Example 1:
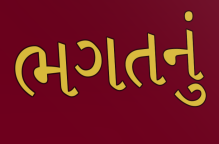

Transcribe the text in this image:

ભગતનું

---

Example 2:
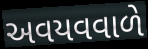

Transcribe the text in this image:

અવયવવાળે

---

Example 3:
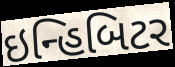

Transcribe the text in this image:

ઇન્હિબિટર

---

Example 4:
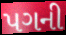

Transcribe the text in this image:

પગની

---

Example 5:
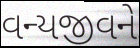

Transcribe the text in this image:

વન્યજીવને